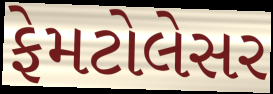
ફેમટોલેસર